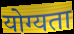
योग्‍यता